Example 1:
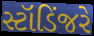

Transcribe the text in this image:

સ્ટૉડિંજરે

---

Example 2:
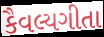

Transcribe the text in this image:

કૈવલ્યગીતા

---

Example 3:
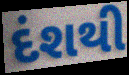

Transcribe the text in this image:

દંશથી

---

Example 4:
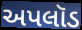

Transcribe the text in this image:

અપલૉડ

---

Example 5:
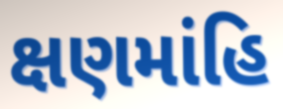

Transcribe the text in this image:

ક્ષણમાંહિ